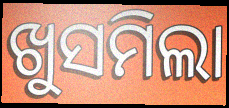
ଖୁସମିଲା